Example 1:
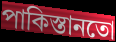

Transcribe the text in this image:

পাকিস্তানতো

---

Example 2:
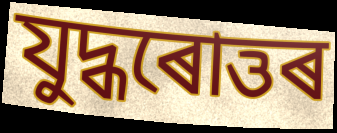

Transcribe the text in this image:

যুদ্ধৰোত্তৰ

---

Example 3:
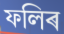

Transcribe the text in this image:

ফলিৰ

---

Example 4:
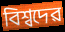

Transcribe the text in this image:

বিশ্বদেৱ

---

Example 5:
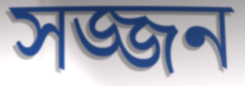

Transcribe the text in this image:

সজ্জন